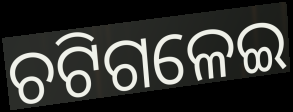
ଚଟିଗଳେଇ